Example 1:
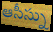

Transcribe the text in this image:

ఆసీస్ను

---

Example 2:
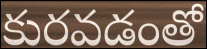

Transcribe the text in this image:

కురవడంతో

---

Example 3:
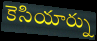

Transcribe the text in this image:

కెసియార్ను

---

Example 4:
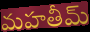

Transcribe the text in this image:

మహతీమ్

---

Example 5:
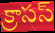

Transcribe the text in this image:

క్రాసస్